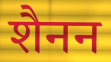
शैनन